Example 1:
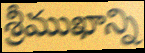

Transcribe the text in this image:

శ్రీముఖాన్ని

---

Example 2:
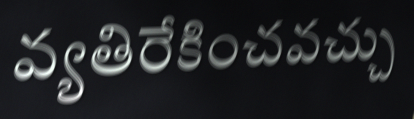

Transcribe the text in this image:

వ్యతిరేకించవచ్చు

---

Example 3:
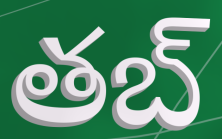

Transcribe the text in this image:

తబ్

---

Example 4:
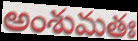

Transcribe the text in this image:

అంశుమతః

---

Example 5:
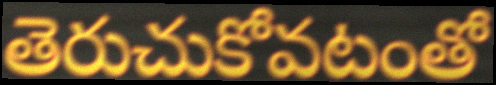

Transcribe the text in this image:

తెరుచుకోవటంతో